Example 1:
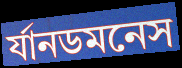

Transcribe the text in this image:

র্যানডমনেস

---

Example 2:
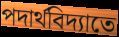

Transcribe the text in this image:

পদার্থবিদ্যাতে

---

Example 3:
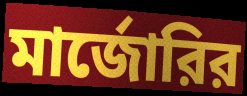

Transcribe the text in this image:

মার্জোরির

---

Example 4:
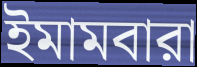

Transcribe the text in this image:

ইমামবারা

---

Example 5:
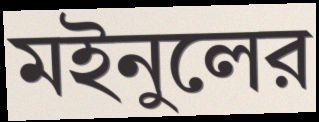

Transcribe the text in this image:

মইনুলের